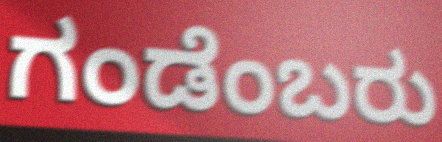
ಗಂಡೆಂಬರು